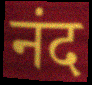
नंद